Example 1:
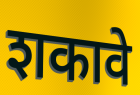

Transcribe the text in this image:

शकावे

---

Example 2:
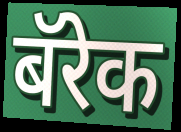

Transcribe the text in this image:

बॅरेक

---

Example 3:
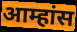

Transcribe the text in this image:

आम्हांस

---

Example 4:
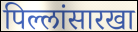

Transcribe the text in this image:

पिल्लांसारखा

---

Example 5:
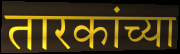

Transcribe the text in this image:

तारकांच्या